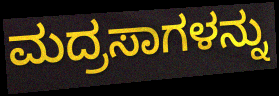
ಮದ್ರಸಾಗಳನ್ನು